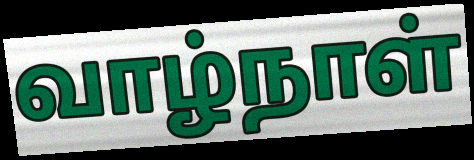
வாழ்நாள்